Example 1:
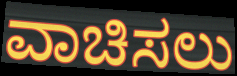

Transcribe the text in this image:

ವಾಚಿಸಲು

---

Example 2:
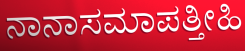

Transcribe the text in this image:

ನಾನಾಸಮಾಪತ್ತೀಹಿ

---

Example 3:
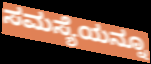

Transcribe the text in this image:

ಸಮಸ್ಯೆಯನ್ನೂ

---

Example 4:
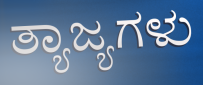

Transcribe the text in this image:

ತ್ಯಾಜ್ಯಗಳು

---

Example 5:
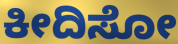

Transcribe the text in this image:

ಕೀದಿಸೋ